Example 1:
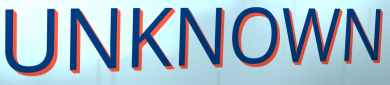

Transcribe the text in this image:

UNKNOWN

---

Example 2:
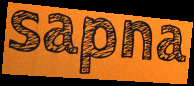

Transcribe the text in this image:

sapna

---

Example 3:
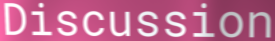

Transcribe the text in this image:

Discussion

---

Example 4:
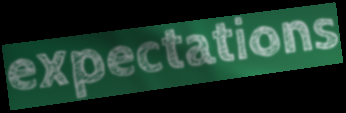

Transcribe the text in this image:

expectations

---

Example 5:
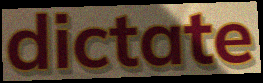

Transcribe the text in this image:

dictate